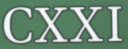
CXXI